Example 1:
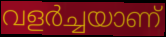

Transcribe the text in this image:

വളർച്ചയാണ്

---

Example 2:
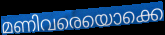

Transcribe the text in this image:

മണിവരെയൊക്കെ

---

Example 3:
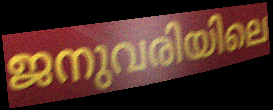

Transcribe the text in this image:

ജനുവരിയിലെ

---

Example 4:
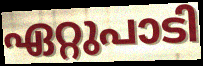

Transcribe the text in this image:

ഏറ്റുപാടി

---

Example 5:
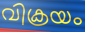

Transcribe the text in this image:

വിക്രയം